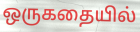
ஒருகதையில்